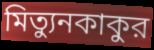
মিত্যুনকাকুর